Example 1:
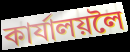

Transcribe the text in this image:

কাৰ্যালয়লৈ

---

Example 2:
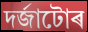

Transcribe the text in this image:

দৰ্জাটোৰ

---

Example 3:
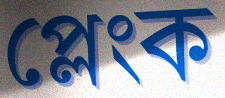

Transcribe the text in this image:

প্লেংক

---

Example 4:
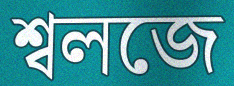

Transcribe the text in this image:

শ্বলজে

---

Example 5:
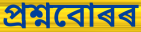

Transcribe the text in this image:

প্ৰশ্নবোৰৰ